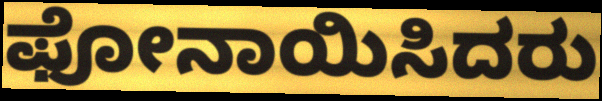
ಫೋನಾಯಿಸಿದರು